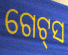
ଗେଟ୍‌ସ